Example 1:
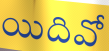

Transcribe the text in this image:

యిదివో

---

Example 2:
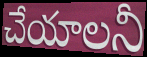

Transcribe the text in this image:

చేయాలనీ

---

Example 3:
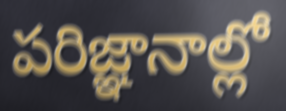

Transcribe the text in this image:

పరిజ్ఞానాల్లో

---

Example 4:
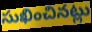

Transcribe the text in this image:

సుఖించినట్లు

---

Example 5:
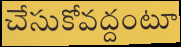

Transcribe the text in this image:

చేసుకోవద్దంటూ